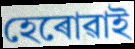
হেৰোৱাই